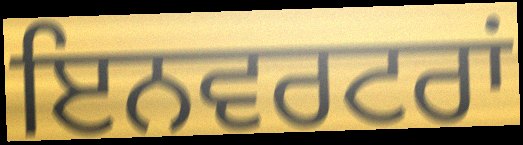
ਇਨਵਰਟਰਾਂ